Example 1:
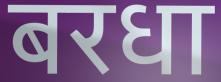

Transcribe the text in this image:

बरधा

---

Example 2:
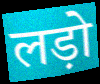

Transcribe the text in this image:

लड़ो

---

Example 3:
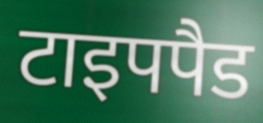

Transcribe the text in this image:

टाइपपैड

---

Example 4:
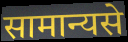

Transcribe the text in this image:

सामान्यसे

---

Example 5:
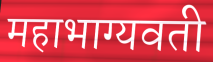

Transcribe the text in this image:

महाभाग्यवती